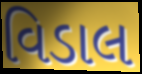
વિડાલ